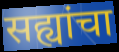
सह्यांचा